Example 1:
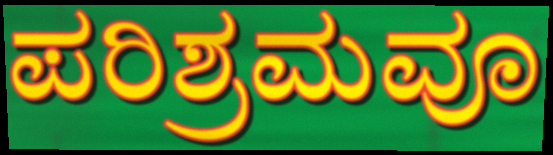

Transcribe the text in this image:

ಪರಿಶ್ರಮವೂ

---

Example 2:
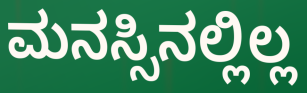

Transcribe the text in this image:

ಮನಸ್ಸಿನಲ್ಲಿಲ್ಲ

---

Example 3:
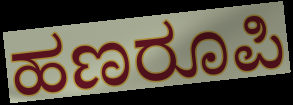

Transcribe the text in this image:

ಹಣರೂಪಿ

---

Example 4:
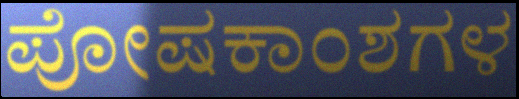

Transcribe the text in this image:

ಪೋಷಕಾಂಶಗಳ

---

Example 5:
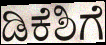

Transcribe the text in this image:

ಡಿಕೆಶಿಗೆ